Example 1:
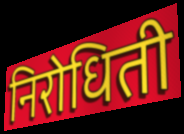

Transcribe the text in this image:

निरोधिती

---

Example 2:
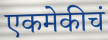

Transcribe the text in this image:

एकमेकीचं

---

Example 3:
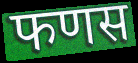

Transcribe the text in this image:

फणस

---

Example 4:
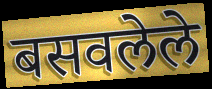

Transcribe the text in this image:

बसवलेले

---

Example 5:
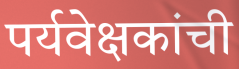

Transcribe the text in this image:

पर्यवेक्षकांची